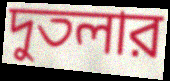
দুতলার